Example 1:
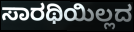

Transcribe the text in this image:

ಸಾರಥಿಯಿಲ್ಲದ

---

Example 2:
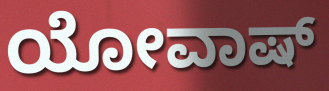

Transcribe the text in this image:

ಯೋವಾಷ್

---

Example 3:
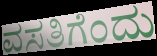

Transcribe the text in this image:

ವಸತಿಗೆಂದು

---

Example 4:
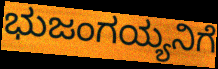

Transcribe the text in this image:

ಭುಜಂಗಯ್ಯನಿಗೆ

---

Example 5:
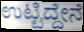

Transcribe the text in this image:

ಉಟ್ಟಿದ್ದೇನೆ